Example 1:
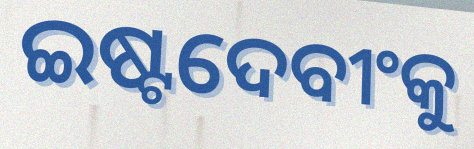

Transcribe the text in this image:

ଇଷ୍ଟଦେବୀଂକୁ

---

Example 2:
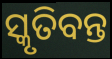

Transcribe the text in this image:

ସ୍କୃତିବନ୍ତ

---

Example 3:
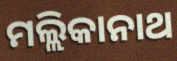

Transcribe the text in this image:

ମଲ୍ଲିକାନାଥ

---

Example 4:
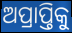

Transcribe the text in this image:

ଅପ୍ରାପ୍ତିକୁ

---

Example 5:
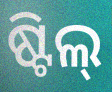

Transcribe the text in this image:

ଷ୍ଟିଲ୍